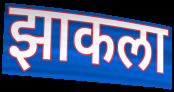
झाकला